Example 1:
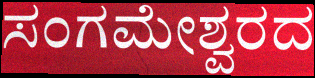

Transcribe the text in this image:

ಸಂಗಮೇಶ್ವರದ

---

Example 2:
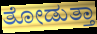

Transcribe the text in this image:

ತೋಡುತ್ತಾ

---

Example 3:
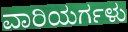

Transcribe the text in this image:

ವಾರಿಯರ್ಗಳು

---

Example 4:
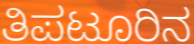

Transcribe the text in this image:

ತಿಪಟೂರಿನ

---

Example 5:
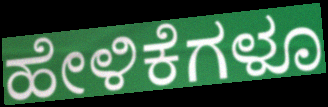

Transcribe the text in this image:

ಹೇಳಿಕೆಗಳೂ